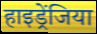
हाइड्रेंजिया